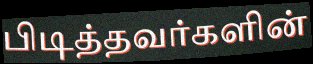
பிடித்தவர்களின்